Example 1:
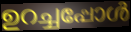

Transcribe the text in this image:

ഉറച്ചപ്പോൾ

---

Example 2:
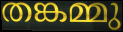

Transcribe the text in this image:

തങ്കമ്മു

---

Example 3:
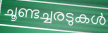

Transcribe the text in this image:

ചൂണ്ടച്ചരടുകൾ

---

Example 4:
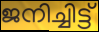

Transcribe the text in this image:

ജനിച്ചിട്ട്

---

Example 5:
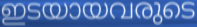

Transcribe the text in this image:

ഇടയായവരുടെ